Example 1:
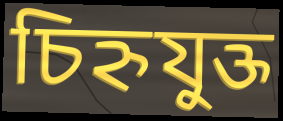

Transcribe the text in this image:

চিহ্নযুক্ত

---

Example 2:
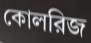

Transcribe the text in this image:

কোলরিজ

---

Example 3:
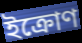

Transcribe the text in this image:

ইক্রোণ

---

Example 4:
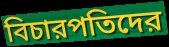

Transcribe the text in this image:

বিচারপতিদের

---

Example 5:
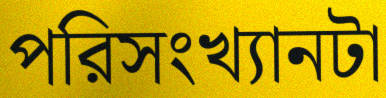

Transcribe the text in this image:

পরিসংখ্যানটা